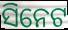
ସିନେଟ